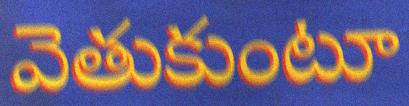
వెతుకుంటూ